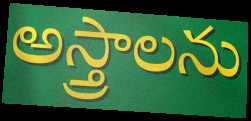
అస్త్రాలను